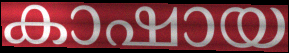
കാഷായ